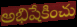
అభిషేకించు